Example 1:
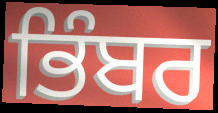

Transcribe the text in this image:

ਭਿੰਬਰ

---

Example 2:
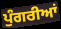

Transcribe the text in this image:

ਪੁੰਗਰੀਆਂ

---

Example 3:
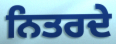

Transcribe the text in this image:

ਨਿਤਰਦੇ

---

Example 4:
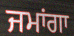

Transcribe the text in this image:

ਜਮਾਂਗਾ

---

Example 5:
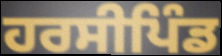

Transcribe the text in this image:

ਹਰਸੀਪਿੰਡ